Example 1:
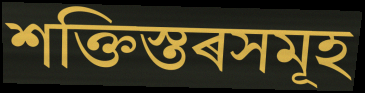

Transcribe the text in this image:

শক্তিস্তৰসমূহ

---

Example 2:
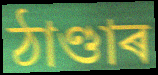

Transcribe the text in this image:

ঠাণ্ডাৰ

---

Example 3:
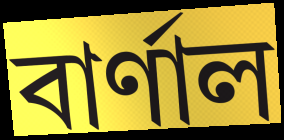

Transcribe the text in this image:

বাৰ্ণাল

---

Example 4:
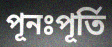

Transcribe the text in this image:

পূনঃপূৰ্তি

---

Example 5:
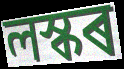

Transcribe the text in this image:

লস্কৰ